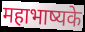
महाभाष्यके